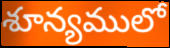
శూన్యములో